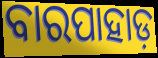
ବାରପାହାଡ଼